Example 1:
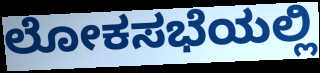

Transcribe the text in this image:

ಲೋಕಸಭೆಯಲ್ಲಿ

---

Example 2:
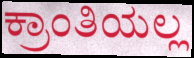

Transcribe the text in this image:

ಕ್ರಾಂತಿಯಲ್ಲ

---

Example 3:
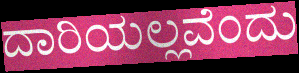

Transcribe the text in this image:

ದಾರಿಯಲ್ಲವೆಂದು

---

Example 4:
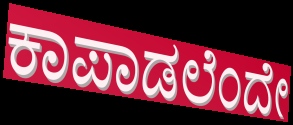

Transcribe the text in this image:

ಕಾಪಾಡಲೆಂದೇ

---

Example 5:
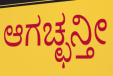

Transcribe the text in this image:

ಆಗಚ್ಛನ್ತೀ